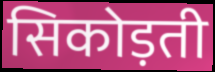
सिकोड़ती